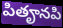
పితౄనపి